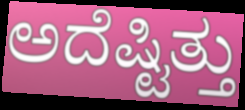
ಅದೆಷ್ಟಿತ್ತು